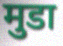
मुडा